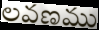
లవణము